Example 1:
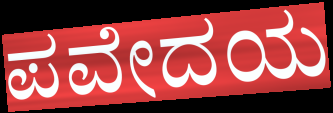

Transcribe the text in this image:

ಪವೇದಯ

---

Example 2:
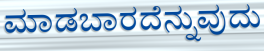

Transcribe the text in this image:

ಮಾಡಬಾರದೆನ್ನುವುದು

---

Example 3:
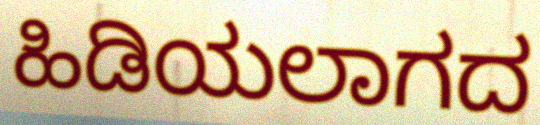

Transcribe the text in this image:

ಹಿಡಿಯಲಾಗದ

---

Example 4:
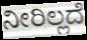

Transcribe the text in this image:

ನೀರಿಲ್ಲದೆ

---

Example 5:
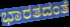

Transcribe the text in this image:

ಭಾರತದಂತೆ